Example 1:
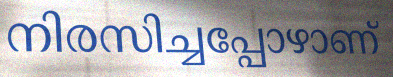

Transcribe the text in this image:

നിരസിച്ചപ്പോഴാണ്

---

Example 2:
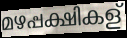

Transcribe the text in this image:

മഴപ്പക്ഷികള്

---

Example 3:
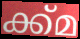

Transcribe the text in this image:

ക്ക്മ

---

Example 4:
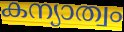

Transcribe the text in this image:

കന്യാത്വം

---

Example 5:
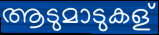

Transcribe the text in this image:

ആടുമാടുകള്